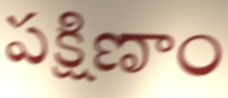
పక్షిణాం